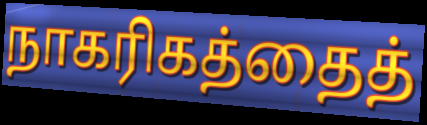
நாகரிகத்தைத்